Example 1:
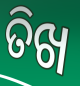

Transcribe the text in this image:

ତିଖ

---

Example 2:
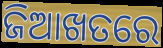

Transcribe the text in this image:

ଜିଆଖତରେ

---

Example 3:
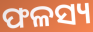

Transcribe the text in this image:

ଫଳସ୍ୟ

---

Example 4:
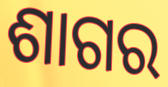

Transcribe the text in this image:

ଶାଗର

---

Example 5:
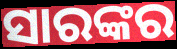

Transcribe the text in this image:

ସାରଙ୍କର